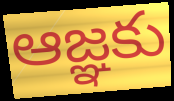
ఆజ్ఞకు